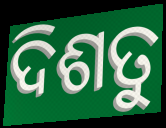
ଦିଶତୁ